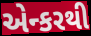
એન્કરથી